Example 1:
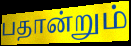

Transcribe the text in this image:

பதான்றும்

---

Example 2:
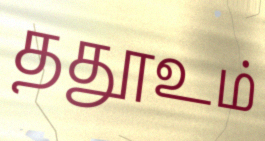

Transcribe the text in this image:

ததூஉம்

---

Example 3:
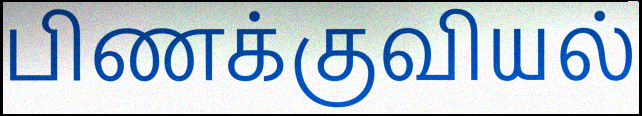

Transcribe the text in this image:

பிணக்குவியல்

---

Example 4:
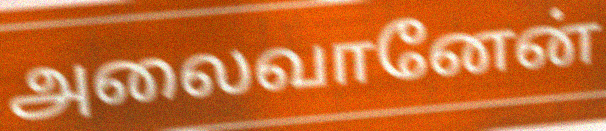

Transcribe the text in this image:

அலைவானேன்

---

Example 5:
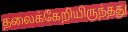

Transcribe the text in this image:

தலைக்கேறியிருந்தது